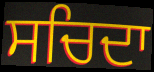
ਸਚਿਦਾ